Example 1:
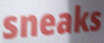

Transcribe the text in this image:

sneaks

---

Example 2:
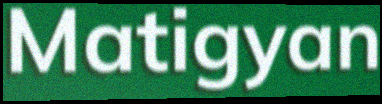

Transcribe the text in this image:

Matigyan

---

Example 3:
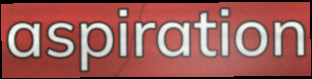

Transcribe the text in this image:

aspiration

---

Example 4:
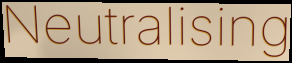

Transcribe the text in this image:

Neutralising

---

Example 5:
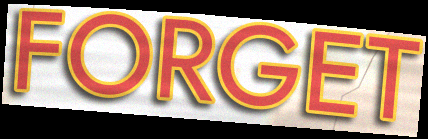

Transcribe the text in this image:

FORGET